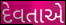
દેવતાએ